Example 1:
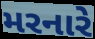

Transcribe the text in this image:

મરનારે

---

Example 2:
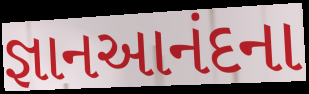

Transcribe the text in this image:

જ્ઞાનઆનંદના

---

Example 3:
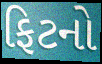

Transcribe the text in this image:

ફિટનો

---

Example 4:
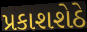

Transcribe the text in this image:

પ્રકાશશેઠે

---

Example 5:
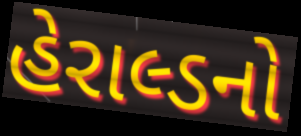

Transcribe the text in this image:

હેરાલ્ડનો